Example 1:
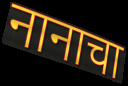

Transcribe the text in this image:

नानाचा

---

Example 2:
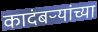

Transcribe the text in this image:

कादंबऱ्यांच्या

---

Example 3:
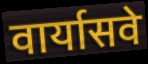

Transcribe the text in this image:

वार्यासवे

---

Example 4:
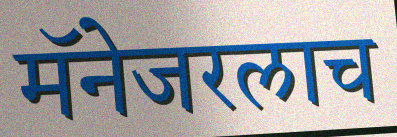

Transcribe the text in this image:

मॅनेजरलाच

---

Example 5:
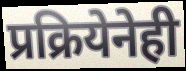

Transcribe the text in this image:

प्रक्रियेनेही